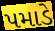
પમાડે